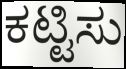
ಕಟ್ಟಿಸು